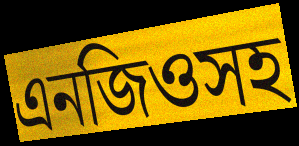
এনজিওসহ